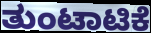
ತುಂಟಾಟಿಕೆ